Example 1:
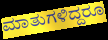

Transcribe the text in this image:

ಮಾತುಗಳಿದ್ದರೂ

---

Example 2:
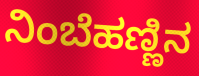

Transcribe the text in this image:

ನಿಂಬೆಹಣ್ಣಿನ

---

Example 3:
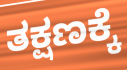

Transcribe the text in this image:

ತಕ್ಷಣಕ್ಕೆ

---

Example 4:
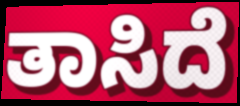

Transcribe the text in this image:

ತಾಸಿದೆ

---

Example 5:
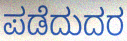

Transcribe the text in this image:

ಪಡೆದುದರ